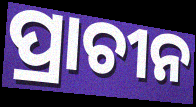
ପ୍ରାଚୀନ